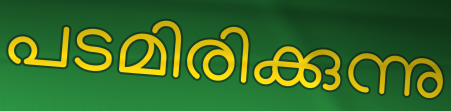
പടമിരിക്കുന്നു